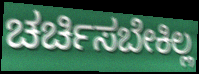
ಚರ್ಚಿಸಬೇಕಿಲ್ಲ